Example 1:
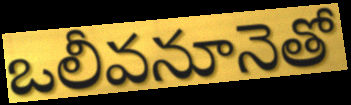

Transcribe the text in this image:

ఒలీవనూనెతో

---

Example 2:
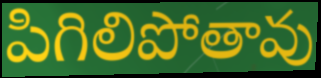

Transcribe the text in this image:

పిగిలిపోతావు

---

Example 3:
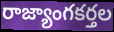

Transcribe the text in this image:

రాజ్యాంగకర్తల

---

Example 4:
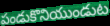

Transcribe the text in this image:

పండుకొనియుండుట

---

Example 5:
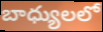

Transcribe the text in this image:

బాధ్యులలో